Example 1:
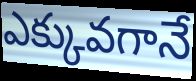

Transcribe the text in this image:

ఎక్కువగానే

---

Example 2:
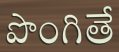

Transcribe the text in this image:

పొంగితే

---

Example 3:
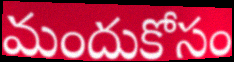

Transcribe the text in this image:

మందుకోసం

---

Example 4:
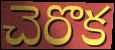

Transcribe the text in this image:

చెరొక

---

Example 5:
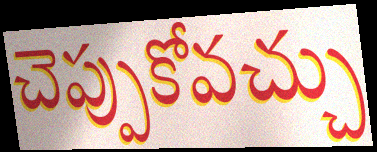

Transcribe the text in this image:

చెప్పుకోవచ్చు